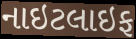
નાઇટલાઇફ